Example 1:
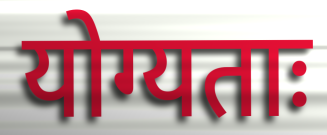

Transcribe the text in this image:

योग्यताः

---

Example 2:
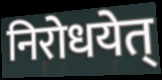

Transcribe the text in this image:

निरोधयेत्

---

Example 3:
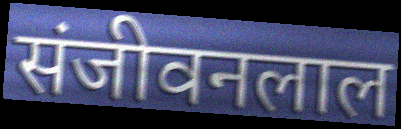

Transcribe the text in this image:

संजीवनलाल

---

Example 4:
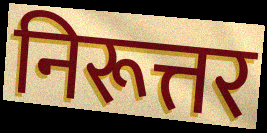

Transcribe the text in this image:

निरूत्तर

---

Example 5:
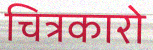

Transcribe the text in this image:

चित्रकारो